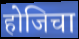
होजिचा